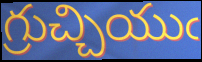
గ్రుచ్చియుఁ